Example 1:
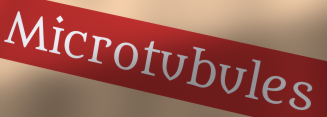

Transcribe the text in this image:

Microtubules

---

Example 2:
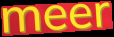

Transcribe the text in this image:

meer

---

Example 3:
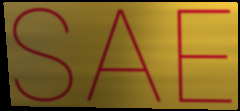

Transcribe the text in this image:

SAE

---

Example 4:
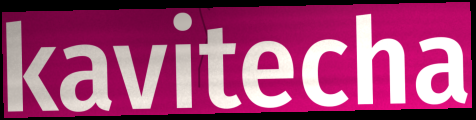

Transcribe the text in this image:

kavitecha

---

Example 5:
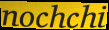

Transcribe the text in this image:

nochchi